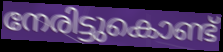
നേരിട്ടുകൊണ്ട്